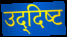
उद्‌दिष्‍ट